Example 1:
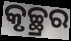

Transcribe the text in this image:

କୃଚ୍ଛ୍ରର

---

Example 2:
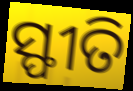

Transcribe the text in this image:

ସ୍ଫୀତି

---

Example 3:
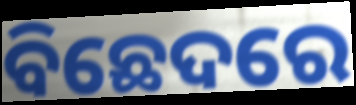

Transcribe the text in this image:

ବିଛେଦରେ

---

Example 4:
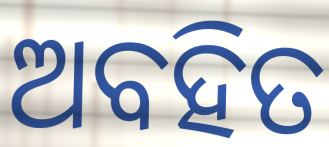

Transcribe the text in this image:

ଅବହିତ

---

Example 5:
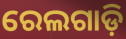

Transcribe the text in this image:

ରେଲଗାଡ଼ି